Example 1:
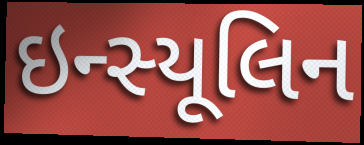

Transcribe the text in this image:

ઇન્સ્યૂલિન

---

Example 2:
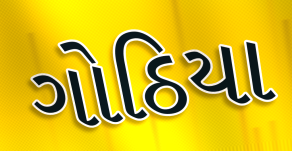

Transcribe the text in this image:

ગોઠિયા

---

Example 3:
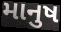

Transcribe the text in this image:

માનુષ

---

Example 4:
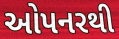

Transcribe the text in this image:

ઓપનરથી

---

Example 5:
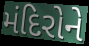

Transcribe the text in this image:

મંદિરોને